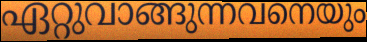
ഏറ്റുവാങ്ങുന്നവനെയും